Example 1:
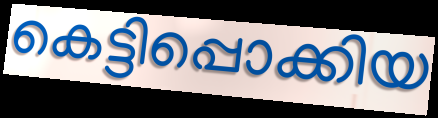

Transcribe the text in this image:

കെട്ടിപ്പൊക്കിയ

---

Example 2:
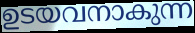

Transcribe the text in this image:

ഉടയവനാകുന്ന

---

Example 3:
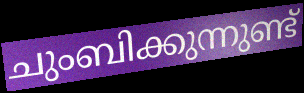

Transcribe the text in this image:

ചുംബിക്കുന്നുണ്ട്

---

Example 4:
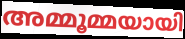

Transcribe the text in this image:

അമ്മൂമ്മയായി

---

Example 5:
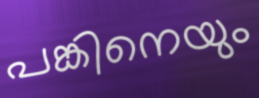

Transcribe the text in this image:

പങ്കിനെയും